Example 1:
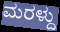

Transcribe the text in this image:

ಮರಳ್ದು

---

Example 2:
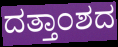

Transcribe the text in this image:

ದತ್ತಾಂಶದ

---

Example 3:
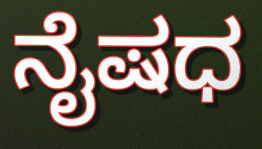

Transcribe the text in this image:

ನೈಷಧ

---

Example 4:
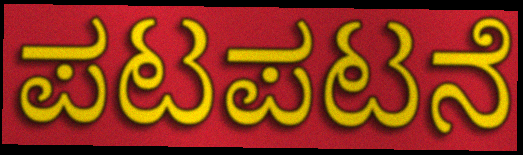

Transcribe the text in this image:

ಪಟಪಟನೆ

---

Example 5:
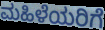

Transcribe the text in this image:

ಮಹಿಳೆಯರಿಗೆ